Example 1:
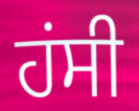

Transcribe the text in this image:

ਹਂਸੀ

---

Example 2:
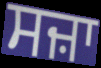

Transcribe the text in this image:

ਸਜ਼ਾ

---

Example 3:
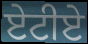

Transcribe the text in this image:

ਏਟੀਏ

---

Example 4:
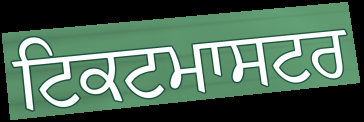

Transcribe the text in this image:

ਟਿਕਟਮਾਸਟਰ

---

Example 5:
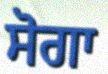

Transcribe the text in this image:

ਸੋਗਾ